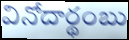
వినోదార్థంబు